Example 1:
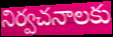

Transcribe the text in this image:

నిర్వచనాలకు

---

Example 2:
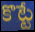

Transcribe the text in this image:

కొట్టే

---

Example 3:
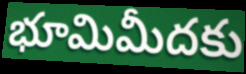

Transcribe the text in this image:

భూమిమీదకు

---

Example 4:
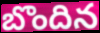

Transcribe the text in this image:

బొందిన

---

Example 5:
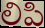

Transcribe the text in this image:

లిపి